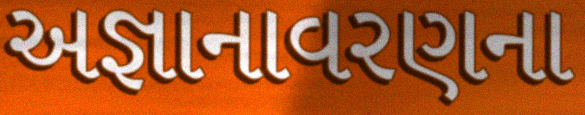
અજ્ઞાનાવરણના